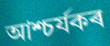
আশ্চৰ্যকৰ